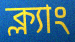
ক্ল্যাং